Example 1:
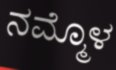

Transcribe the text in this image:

ನಮ್ಮೊಳ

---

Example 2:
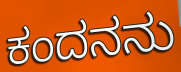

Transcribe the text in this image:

ಕಂದನನು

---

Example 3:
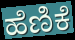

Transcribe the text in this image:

ಹೆಣಿಕೆ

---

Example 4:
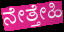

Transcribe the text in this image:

ನೇತ್ತೇಹಿ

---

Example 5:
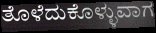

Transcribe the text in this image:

ತೊಳೆದುಕೊಳ್ಳುವಾಗ